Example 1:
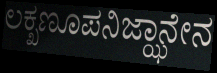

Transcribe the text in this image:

ಲಕ್ಖಣೂಪನಿಜ್ಝಾನೇನ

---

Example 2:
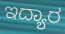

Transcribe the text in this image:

ಇದ್ಯಾರ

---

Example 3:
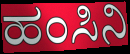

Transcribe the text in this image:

ಹಂಸಿನಿ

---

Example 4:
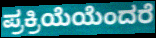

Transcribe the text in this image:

ಪ್ರಕ್ರಿಯೆಯೆಂದರೆ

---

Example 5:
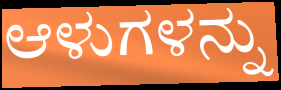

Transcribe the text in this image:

ಆಳುಗಳನ್ನು